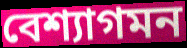
বেশ্যাগমন